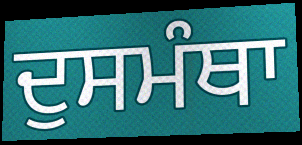
ਦੁਸਮੰਥਾ